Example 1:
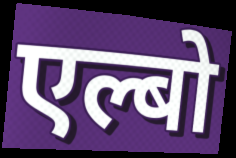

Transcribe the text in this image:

एल्बो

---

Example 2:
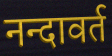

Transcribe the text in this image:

नन्दावर्त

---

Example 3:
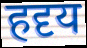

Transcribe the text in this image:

हदृय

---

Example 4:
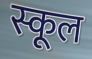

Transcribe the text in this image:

स्‍कूल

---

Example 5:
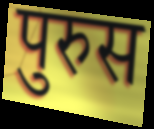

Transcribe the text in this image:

पुरुस